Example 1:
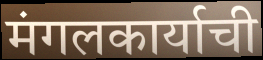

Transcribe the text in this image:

मंगलकार्याची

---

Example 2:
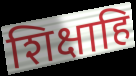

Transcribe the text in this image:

शिक्षाहि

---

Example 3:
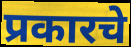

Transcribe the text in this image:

प्रकारचे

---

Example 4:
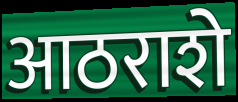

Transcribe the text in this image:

आठराशे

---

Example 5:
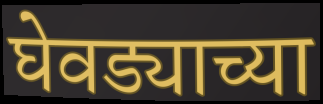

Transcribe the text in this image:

घेवड्याच्या